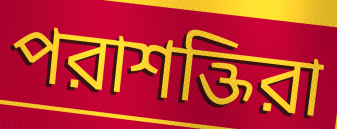
পরাশক্তিরা